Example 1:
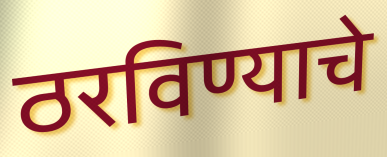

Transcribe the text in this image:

ठरविण्याचे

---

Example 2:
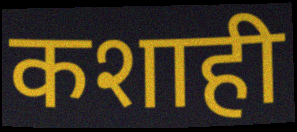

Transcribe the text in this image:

कशाही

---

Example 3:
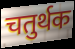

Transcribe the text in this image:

चतुर्थक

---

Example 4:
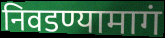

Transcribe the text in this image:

निवडण्यामागं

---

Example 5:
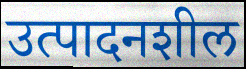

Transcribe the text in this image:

उत्पादनशील